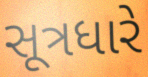
સૂત્રધારે